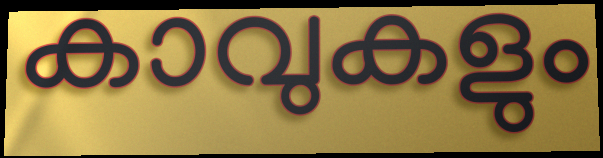
കാവുകളും